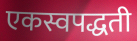
एकस्वपद्धती